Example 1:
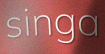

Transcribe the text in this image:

singa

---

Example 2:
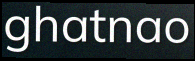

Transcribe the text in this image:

ghatnao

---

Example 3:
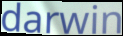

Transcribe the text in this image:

darwin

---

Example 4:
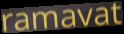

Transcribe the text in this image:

ramavat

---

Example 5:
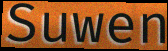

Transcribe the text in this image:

Suwen